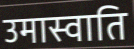
उमास्वाति